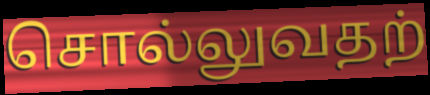
சொல்லுவதற்